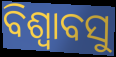
ବିଶ୍ୱାବସୁ